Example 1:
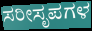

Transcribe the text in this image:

ಸರೀಸೃಪಗಳ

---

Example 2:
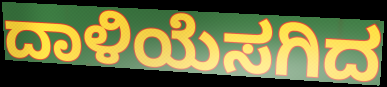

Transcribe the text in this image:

ದಾಳಿಯೆಸಗಿದ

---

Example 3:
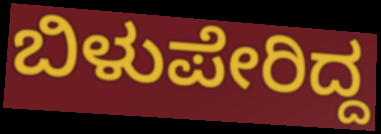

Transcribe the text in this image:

ಬಿಳುಪೇರಿದ್ದ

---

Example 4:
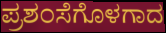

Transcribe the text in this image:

ಪ್ರಶಂಸೆಗೊಳಗಾದ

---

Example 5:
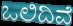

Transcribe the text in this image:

ಒಲಿದಿವೆ